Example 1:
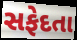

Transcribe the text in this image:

સફેદતા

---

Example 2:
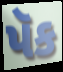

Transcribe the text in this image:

પૅક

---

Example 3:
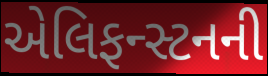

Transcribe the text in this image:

એલિફન્સ્ટનની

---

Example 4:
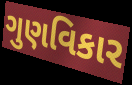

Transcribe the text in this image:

ગુણવિકાર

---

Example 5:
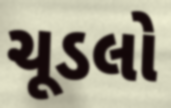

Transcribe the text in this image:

ચૂડલો